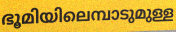
ഭൂമിയിലെമ്പാടുമുള്ള